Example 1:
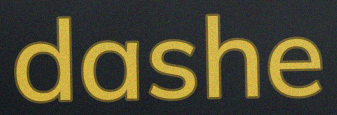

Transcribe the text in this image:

dashe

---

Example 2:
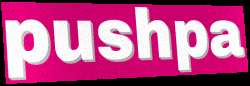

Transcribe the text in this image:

pushpa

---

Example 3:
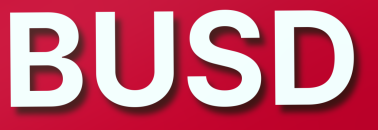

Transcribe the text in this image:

BUSD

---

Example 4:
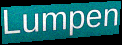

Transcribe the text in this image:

Lumpen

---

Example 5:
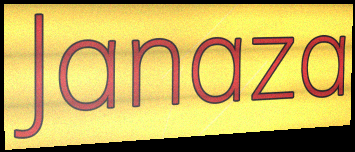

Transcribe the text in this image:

Janaza